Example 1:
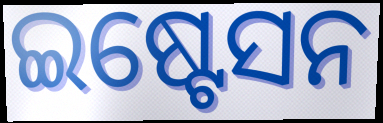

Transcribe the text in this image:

ଇଷ୍ଟେସନ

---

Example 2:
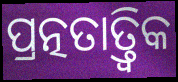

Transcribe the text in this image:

ପ୍ରତ୍ନତାତ୍ତ୍ଵିକ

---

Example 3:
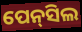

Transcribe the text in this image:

ପେନ୍‌ସିଲ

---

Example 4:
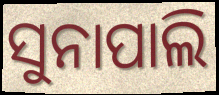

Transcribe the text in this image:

ସୁନାପାଲି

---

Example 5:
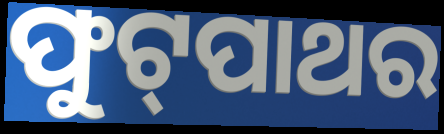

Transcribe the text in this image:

ଫୁଟ୍‌ପାଥର